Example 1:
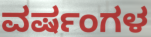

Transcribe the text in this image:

ವರ್ಷಂಗಳ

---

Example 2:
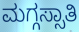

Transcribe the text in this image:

ಮಗ್ಗಸ್ಸಾತಿ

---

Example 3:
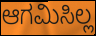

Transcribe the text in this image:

ಆಗಮಿಸಿಲ್ಲ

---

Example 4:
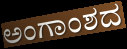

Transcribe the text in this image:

ಅಂಗಾಂಶದ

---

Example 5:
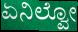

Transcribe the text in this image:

ಏನಿಲ್ವೋ